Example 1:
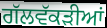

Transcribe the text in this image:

ਗੱਲਵੱਕੜੀਆਂ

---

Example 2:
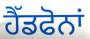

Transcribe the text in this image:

ਹੈੱਡਫੋਨਾਂ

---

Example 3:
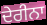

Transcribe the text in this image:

ਦੇਰੀਨਾ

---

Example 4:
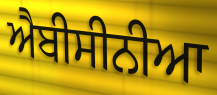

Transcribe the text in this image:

ਐਬੀਸੀਨੀਆ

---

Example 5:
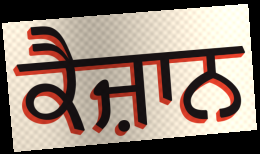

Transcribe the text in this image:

ਕੈਜ਼ਾਨ